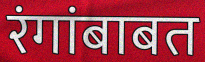
रंगांबाबत